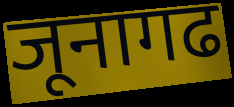
जूनागढ